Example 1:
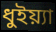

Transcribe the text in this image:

ধুইয়্যা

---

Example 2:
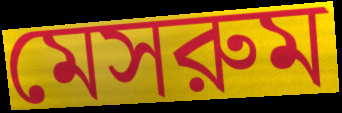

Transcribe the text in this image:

মেসরুম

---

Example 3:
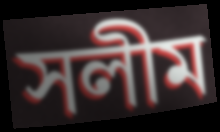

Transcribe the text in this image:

সলীম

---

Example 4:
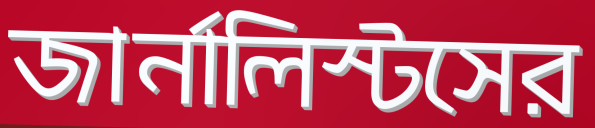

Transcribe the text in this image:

জার্নালিস্টসের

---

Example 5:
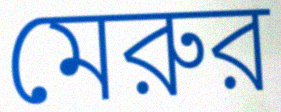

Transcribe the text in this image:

মেরুর